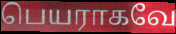
பெயராகவே